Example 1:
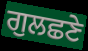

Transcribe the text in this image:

ਗੁਲਛਣੇ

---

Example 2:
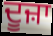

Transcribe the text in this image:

ਦੂਜ਼ਾ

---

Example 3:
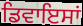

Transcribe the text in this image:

ਡਿਵਾਇਸਾਂ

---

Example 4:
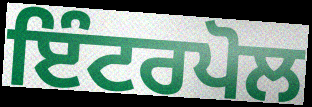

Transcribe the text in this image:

ਇੰਟਰਪੋਲ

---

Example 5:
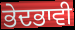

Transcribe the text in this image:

ਭੇਦਭਾਵੀ